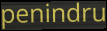
penindru